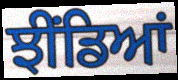
ਝੀਂਡਿਆਂ